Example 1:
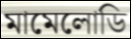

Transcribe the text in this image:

মামেলোডি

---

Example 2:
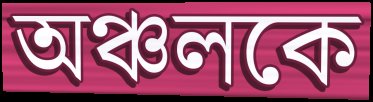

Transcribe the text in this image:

অঞ্চলকে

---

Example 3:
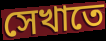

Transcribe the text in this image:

সেখাতে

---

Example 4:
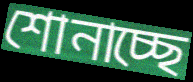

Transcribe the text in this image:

শোনাচ্ছে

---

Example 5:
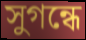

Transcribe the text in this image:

সুগন্ধে